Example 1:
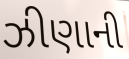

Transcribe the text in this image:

ઝીણાની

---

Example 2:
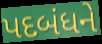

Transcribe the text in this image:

પદબંધને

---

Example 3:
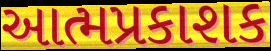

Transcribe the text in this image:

આત્મપ્રકાશક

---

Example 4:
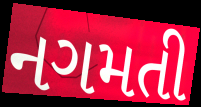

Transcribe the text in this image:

નગમતી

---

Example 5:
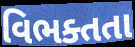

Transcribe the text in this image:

વિભક્તતા